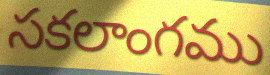
సకలాంగము